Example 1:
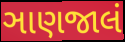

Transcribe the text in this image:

ઞાણજાલં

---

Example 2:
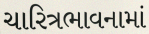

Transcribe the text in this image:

ચારિત્રભાવનામાં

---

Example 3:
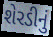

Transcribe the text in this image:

શેરડીનું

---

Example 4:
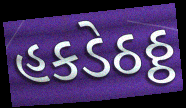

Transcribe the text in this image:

હકડેઠઠ્ઠ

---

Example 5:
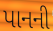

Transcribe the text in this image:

પાનની